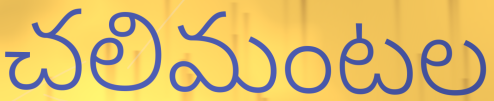
చలిమంటల